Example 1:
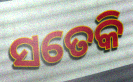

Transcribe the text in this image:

ସତେକି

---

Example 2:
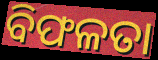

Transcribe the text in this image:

ବିଫଳତା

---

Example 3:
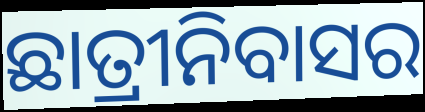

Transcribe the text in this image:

ଛାତ୍ରୀନିବାସର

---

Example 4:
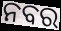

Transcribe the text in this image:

ନବର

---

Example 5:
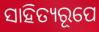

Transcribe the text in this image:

ସାହିତ୍ୟରୂପେ